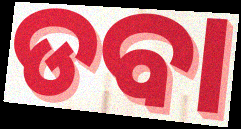
ଡବା